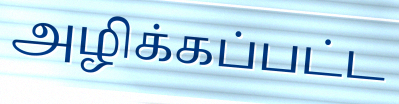
அழிக்கப்பட்ட